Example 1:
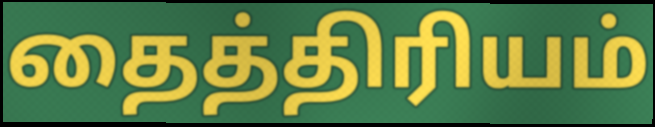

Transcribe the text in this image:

தைத்திரியம்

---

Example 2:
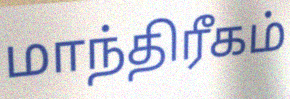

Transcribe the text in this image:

மாந்திரீகம்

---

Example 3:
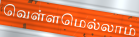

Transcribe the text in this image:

வெள்ளமெல்லாம்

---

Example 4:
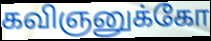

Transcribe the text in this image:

கவிஞனுக்கோ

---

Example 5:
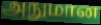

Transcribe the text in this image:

அநுமான